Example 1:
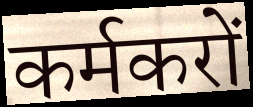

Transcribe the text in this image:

कर्मकरों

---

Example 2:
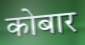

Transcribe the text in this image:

कोबार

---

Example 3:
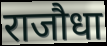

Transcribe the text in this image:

राजौधा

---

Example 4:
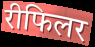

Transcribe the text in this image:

रीफिलर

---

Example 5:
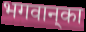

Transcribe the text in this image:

भगवान्‌का